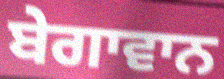
ਬੇਗਾਵਾਨ